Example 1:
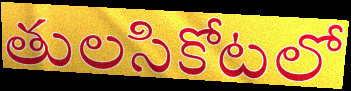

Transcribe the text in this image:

తులసికోటలో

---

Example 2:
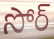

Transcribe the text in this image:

సోర్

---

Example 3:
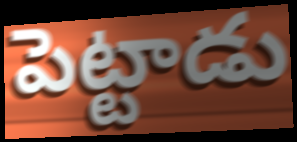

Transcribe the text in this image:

పెట్టాడు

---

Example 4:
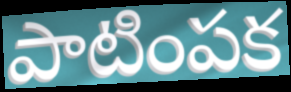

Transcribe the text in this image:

పాటింపక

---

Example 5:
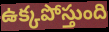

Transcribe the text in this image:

ఉక్కపోస్తుంది